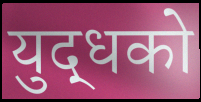
युद्धको